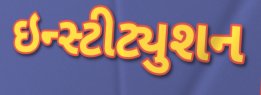
ઇન્સ્ટીટ્યુશન